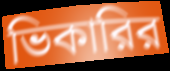
ভিকারির